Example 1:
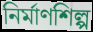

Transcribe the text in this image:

নির্মাণশিল্প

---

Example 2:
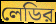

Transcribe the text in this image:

লেডির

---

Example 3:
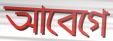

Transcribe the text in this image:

আবেগে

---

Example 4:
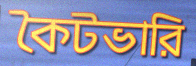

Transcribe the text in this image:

কৈটভারি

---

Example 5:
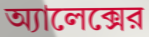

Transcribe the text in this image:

অ্যালেক্সের